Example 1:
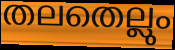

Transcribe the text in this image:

തലതെല്ലും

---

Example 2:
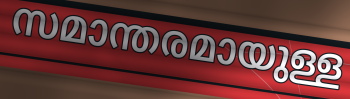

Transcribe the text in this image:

സമാന്തരമായുള്ള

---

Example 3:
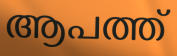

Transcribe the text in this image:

ആപത്ത്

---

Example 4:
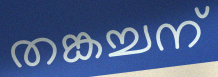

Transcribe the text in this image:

തങ്കച്ചന്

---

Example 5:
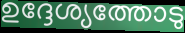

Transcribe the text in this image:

ഉദ്ദേശ്യത്തോടു